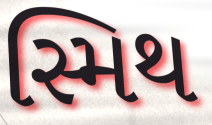
સ્મિથ